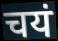
चयं